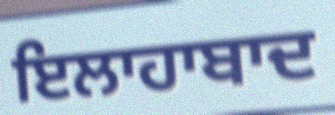
ਇਲਾਹਾਬਾਦ